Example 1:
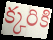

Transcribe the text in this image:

క్కరికి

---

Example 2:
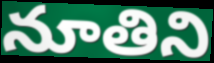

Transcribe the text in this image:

నూతిని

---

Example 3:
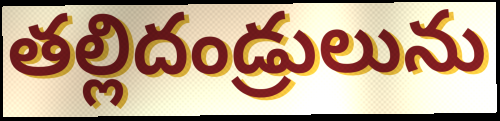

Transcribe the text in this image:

తల్లిదండ్రులును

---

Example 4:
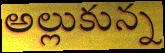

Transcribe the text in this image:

అల్లుకున్న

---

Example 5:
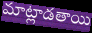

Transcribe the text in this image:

మాట్లాడతాయి